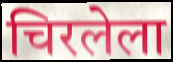
चिरलेला